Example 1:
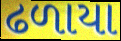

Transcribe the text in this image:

ઢળાયા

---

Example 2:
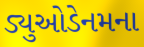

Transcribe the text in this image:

ડ્યુઓડેનમના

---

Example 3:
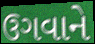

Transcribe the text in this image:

ઉગવાને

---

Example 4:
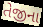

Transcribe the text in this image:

તેજીના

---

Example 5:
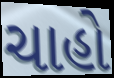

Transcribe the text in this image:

ચાહો